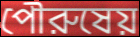
পৌরুষেয়